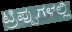
ಟ್ರಿಪ್ಪುಗಳಲ್ಲಿ